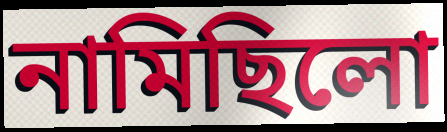
নামিছিলো